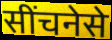
सींचनेसे